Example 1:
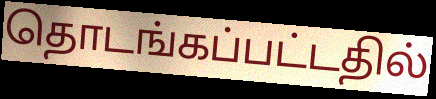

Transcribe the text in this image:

தொடங்கப்பட்டதில்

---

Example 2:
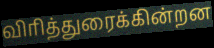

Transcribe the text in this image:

விரித்துரைக்கின்றன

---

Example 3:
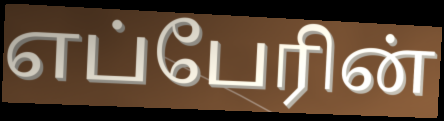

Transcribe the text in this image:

எப்பேரின்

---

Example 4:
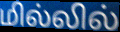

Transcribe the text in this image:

மில்லில்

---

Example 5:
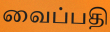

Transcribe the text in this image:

வைப்பதி